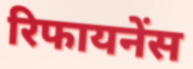
रिफायनेंस